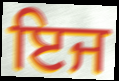
ਇਜ